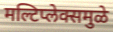
मल्टिप्लेक्समुळे